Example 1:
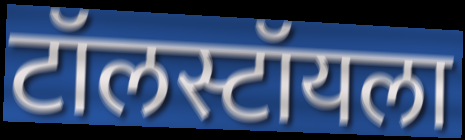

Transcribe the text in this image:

टॉलस्टॉयला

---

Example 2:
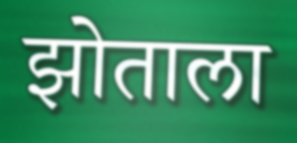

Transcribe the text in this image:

झोताला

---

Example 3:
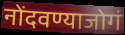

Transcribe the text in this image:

नोंदवण्याजोगं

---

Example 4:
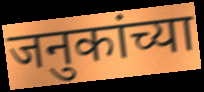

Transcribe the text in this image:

जनुकांच्या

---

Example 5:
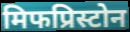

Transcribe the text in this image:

मिफप्रिस्टोन